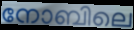
നോബിലെ